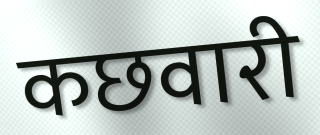
कछवारी